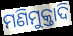
ମଣିମୁକ୍ତାଦି